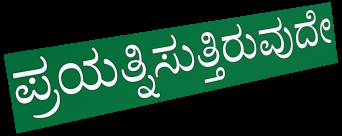
ಪ್ರಯತ್ನಿಸುತ್ತಿರುವುದೇ